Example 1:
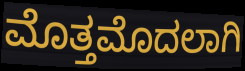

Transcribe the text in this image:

ಮೊತ್ತಮೊದಲಾಗಿ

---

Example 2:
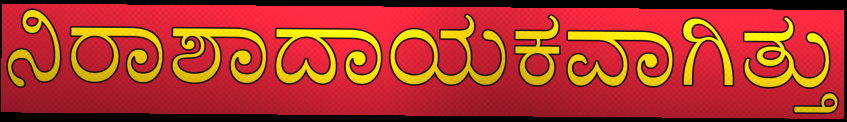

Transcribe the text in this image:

ನಿರಾಶಾದಾಯಕವಾಗಿತ್ತು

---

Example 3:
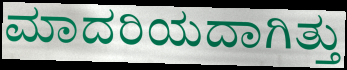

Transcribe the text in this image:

ಮಾದರಿಯದಾಗಿತ್ತು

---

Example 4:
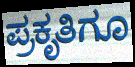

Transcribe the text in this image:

ಪ್ರಕೃತಿಗೂ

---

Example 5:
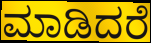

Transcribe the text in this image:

ಮಾಡಿದರೆ